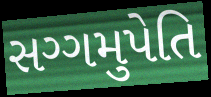
સગ્ગમુપેતિ